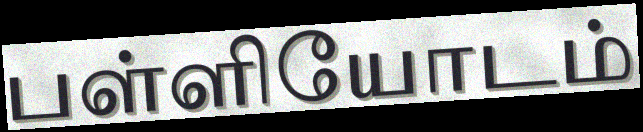
பள்ளியோடம்